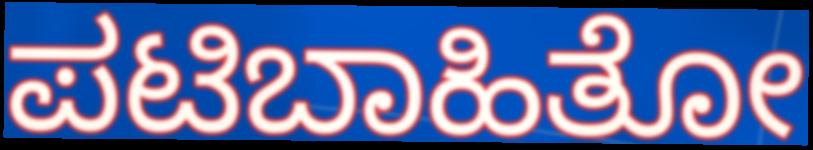
ಪಟಿಬಾಹಿತೋ